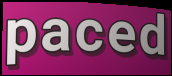
paced